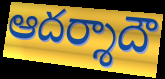
ఆదర్శాదౌ